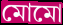
মোমো